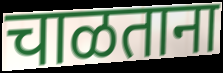
चाळताना